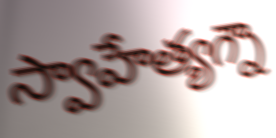
స్వాహేత్యగ్నౌ